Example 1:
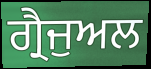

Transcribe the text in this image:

ਗ੍ਰੈਜੁਅਲ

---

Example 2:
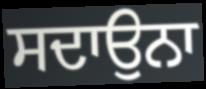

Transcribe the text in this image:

ਸਦਾਉਨਾ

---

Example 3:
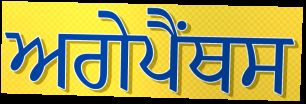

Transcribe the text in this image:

ਅਗੇਪੈਂਥਸ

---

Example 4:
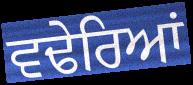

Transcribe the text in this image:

ਵਢੇਰਿਆਂ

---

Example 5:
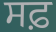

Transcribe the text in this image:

ਸਫ਼